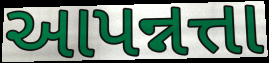
આપન્નત્તા